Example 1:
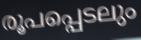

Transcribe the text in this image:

രൂപപ്പെടലും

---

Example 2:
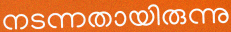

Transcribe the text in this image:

നടന്നതായിരുന്നു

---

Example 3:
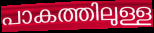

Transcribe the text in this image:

പാകത്തിലുള്ള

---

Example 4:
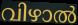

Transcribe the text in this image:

വിഴാൽ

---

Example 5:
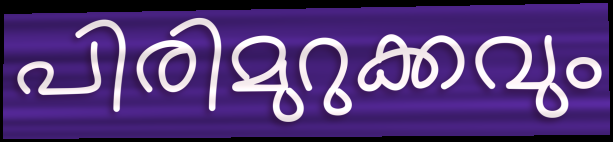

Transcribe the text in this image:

പിരിമുറുക്കവും